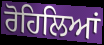
ਰੋਹਿਲਿਆਂ